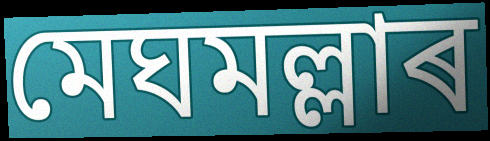
মেঘমল্লাৰ